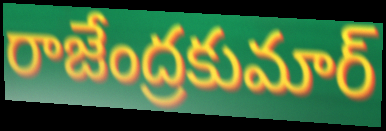
రాజేంద్రకుమార్